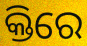
କ୍ତିରେ